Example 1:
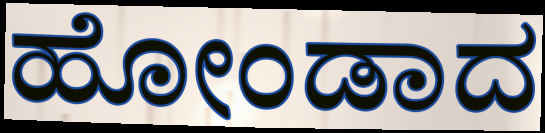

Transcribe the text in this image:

ಹೋಂಡಾದ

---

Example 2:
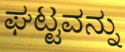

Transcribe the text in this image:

ಘಟ್ಟವನ್ನು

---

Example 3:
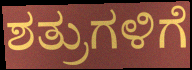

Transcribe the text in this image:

ಶತ್ರುಗಳಿಗೆ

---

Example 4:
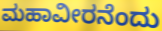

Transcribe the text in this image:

ಮಹಾವೀರನೆಂದು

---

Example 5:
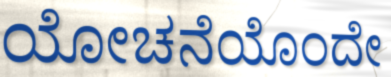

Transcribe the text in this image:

ಯೋಚನೆಯೊಂದೇ